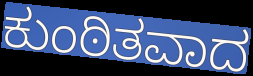
ಕುಂಠಿತವಾದ